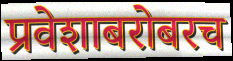
प्रवेशाबरोबरच